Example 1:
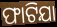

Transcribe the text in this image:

ଫାଟିଯା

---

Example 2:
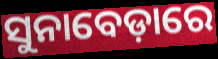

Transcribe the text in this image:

ସୁନାବେଡ଼ାରେ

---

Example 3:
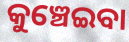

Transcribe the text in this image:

କୁଞ୍ଚେଇବା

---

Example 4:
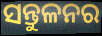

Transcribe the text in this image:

ସନ୍ତୁଳନର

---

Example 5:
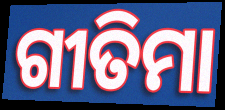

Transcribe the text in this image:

ଗୀତିମା